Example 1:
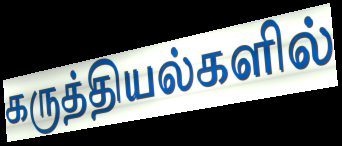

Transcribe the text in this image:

கருத்தியல்களில்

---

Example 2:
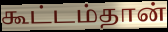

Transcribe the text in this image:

கூட்டம்தான்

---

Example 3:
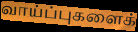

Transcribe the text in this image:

வாய்ப்புகளைக்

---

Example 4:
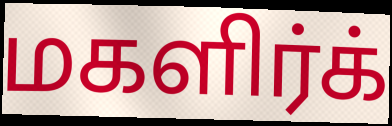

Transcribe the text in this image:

மகளிர்க்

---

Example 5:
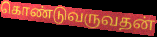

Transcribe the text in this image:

கொண்டுவருவதன்